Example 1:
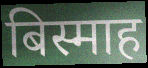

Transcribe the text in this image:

बिस्माह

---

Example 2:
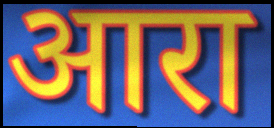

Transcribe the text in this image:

आरा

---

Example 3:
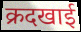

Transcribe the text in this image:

क्रदखाई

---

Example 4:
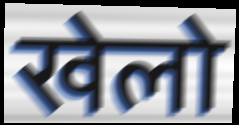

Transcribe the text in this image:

खेलो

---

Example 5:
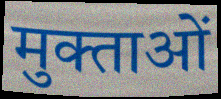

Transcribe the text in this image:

मुक्ताओं